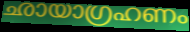
ഛായാഗ്രഹണം